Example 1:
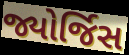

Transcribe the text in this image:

જ્યોર્જિસ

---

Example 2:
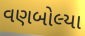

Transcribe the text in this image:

વણબોલ્યા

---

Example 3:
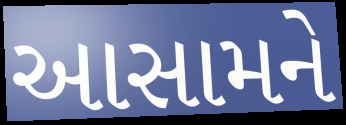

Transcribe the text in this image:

આસામને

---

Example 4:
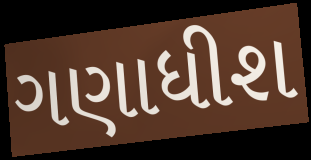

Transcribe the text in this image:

ગણાધીશ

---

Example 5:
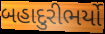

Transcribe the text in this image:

બહાદુરીભર્યો